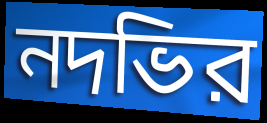
নদভির